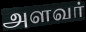
அளவர்